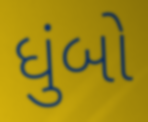
ધુંબો